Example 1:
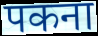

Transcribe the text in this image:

पकना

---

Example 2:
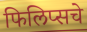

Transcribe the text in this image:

फिलिप्सचे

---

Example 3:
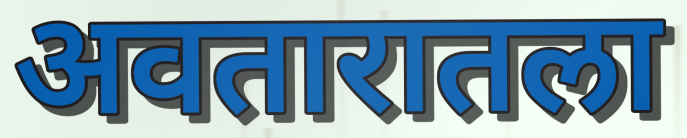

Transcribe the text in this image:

अवतारातला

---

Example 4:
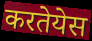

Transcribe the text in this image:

करतेयेस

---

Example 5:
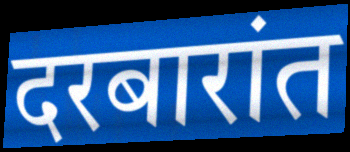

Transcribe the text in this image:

दरबारांत